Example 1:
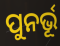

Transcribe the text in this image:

ପୁନର୍ଭୂ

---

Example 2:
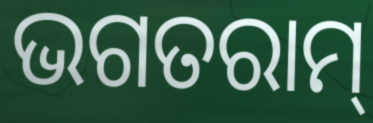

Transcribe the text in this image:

ଭଗତରାମ୍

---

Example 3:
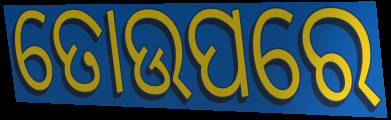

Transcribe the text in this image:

ତୋଉପରେ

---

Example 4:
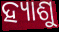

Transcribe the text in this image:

ହ୍ୟାଶୁ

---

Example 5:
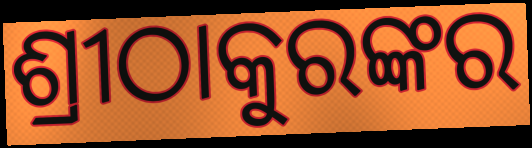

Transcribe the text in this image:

ଶ୍ରୀଠାକୁରଙ୍କର